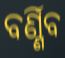
ବର୍ଣ୍ଣିବ